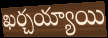
ఖర్చయ్యాయి